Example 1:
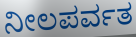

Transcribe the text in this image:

ನೀಲಪರ್ವತ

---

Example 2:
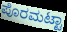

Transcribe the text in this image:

ಪೊರಮಟ್ಟಾ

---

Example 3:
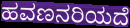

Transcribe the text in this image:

ಹವಣನರಿಯದೆ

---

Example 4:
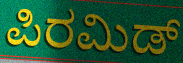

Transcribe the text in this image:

ಪಿರಮಿಡ್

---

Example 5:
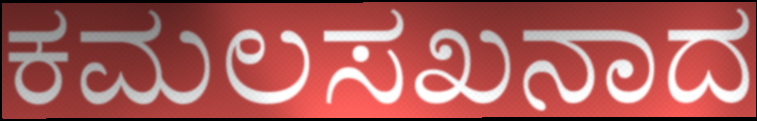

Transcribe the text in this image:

ಕಮಲಸಖನಾದ